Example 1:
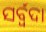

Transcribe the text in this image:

ସର୍ବ୍ବଦା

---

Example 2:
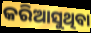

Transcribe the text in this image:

କରିଆସୁଥିବା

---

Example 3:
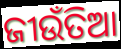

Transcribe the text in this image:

ଜୀଉଁତିଆ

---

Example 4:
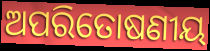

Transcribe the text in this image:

ଅପରିତୋଷଣୀୟ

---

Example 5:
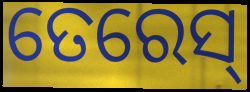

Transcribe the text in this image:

ତେରେସ୍